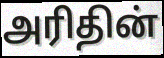
அரிதின்